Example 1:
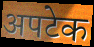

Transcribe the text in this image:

अपटेक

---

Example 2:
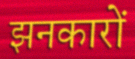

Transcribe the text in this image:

झनकारों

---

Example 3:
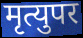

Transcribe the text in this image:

मृत्युपर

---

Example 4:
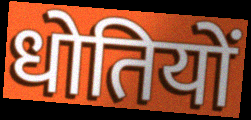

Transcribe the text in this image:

धोतियों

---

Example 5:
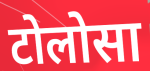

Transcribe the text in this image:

टोलोसा